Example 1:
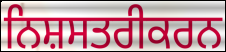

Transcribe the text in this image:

ਨਿਸ਼ਸਤਰੀਕਰਨ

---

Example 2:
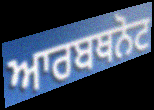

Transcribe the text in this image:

ਆਰਬਥਨੋਟ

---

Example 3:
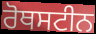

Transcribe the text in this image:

ਰੋਥਸਟੀਨ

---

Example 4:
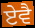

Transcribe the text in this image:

ਏਵੈ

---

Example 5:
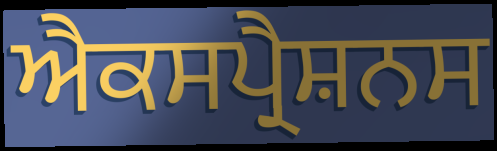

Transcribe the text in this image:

ਐਕਸਪ੍ਰੈਸ਼ਨਸ